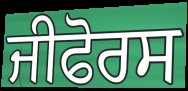
ਜੀਫੋਰਸ